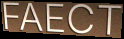
FAECT